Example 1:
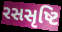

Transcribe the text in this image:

રસસૃષ્ટિ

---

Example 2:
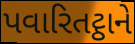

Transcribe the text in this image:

પવારિતટ્ઠાને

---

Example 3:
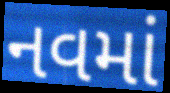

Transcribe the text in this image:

નવમાં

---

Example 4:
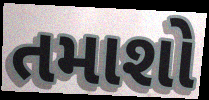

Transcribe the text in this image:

તમાશો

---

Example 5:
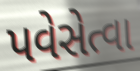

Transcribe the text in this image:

પવેસેત્વા